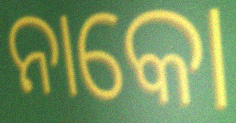
ନାକୋ